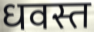
धवस्त